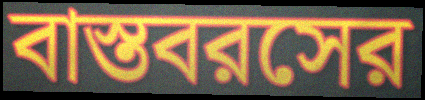
বাস্তবরসের